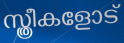
സ്ത്രീകളോട്